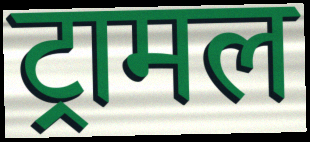
ट्रामल